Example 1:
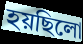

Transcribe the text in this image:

হয়ছিলো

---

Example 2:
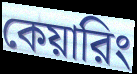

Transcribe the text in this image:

কেয়ারিং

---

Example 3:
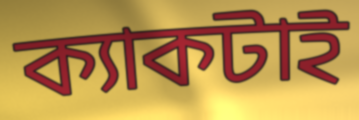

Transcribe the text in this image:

ক্যাকটাই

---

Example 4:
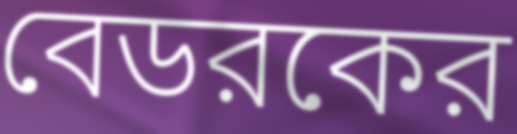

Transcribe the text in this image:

বেডরকের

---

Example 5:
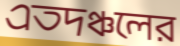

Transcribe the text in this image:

এতদঞ্চলের